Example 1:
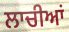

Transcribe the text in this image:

ਲਾਚੀਆਂ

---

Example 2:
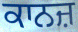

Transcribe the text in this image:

ਕਾਨਜ਼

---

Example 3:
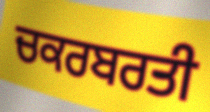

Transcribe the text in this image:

ਚਕਰਬਰਤੀ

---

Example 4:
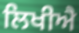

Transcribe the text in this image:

ਲਿਖੀਐ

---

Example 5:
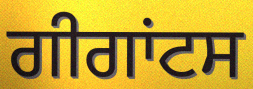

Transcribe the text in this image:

ਗੀਗਾਂਟਸ